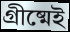
গ্রীষ্মেই